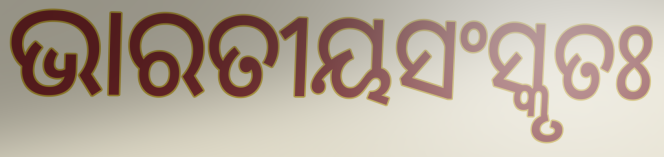
ଭାରତୀୟସଂସ୍କୃତଃ